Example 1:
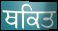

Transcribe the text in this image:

ਥਕਿਤ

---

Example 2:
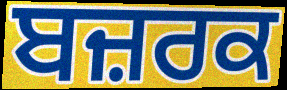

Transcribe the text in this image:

ਬਜ਼ਰਕ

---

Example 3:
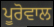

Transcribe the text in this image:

ਪੂਰੋਵਾਲ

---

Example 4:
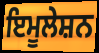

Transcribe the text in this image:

ਇਮੂਲੇਸ਼ਨ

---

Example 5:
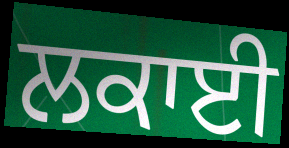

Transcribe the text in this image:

ਲਕਾਈ